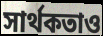
সার্থকতাও